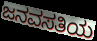
ಜನವಸತಿಯ